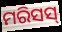
ମରିସସ୍